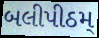
બલીપીઠમ્